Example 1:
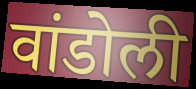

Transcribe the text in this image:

वांडोली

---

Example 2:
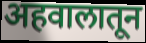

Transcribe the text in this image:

अहवालातून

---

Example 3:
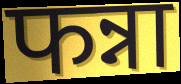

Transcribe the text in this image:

फन्ना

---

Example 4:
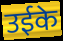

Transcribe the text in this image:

उईके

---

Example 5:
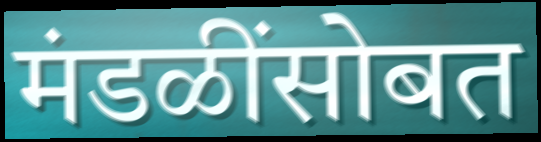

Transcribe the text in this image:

मंडळींसोबत